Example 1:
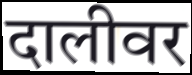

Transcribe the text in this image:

दालीवर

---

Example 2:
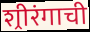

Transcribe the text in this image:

श्रीरंगाची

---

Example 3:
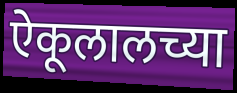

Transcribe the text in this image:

ऐकूलालच्या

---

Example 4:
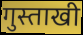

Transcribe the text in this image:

गुस्ताखी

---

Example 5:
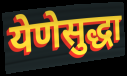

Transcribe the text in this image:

येणेसुद्धा